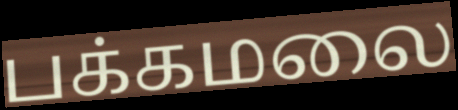
பக்கமலை